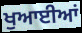
ਖੁਆਈਆਂ